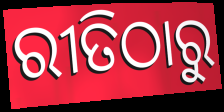
ରୀତିଠାରୁ